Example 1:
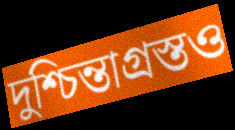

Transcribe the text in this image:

দুশ্চিন্তাগ্রস্তও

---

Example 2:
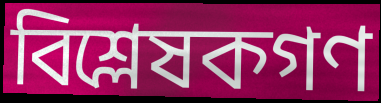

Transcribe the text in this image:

বিশ্লেষকগণ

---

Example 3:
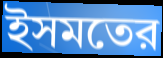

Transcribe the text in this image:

ইসমতের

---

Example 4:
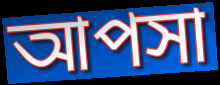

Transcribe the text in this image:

আপসা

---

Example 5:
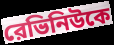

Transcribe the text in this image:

রেভিনিউকে